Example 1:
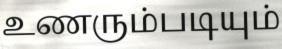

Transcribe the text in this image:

உணரும்படியும்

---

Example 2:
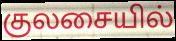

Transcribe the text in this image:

குலசையில்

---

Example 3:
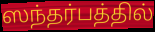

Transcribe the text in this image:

ஸந்தர்பத்தில்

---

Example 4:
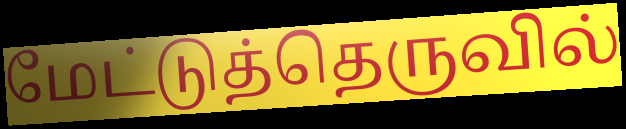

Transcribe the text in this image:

மேட்டுத்தெருவில்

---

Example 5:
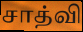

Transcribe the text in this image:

சாத்வி